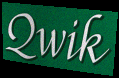
Qwik